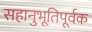
सहानुभूतिपूर्वक